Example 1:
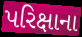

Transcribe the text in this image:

પરિક્ષાના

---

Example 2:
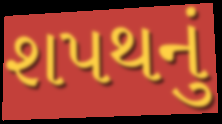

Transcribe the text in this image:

શપથનું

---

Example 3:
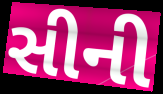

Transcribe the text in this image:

સીની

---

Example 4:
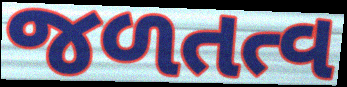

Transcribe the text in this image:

જળતત્વ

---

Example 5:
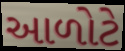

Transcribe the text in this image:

આળોટે